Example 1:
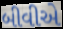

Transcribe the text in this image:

બીવીએ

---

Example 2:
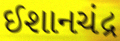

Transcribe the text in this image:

ઈશાનચંદ્ર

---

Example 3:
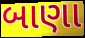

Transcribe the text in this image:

બાણા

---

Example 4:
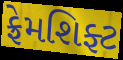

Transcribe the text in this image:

ફ્રેમશિફ્ટ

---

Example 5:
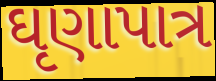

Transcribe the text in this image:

ઘૃણાપાત્ર